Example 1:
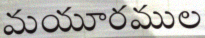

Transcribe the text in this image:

మయూరముల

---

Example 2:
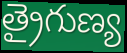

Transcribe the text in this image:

త్రైగుణ్య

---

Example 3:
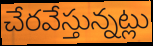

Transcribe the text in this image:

చేరవేస్తున్నట్లు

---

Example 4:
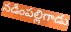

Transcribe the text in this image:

నడింపల్లిగాడు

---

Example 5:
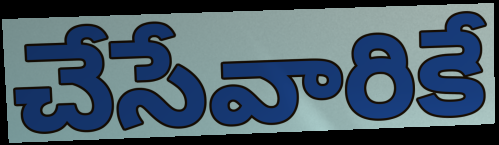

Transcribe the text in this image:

చేసేవారికే